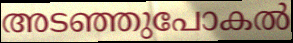
അടഞ്ഞുപോകൽ